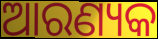
ଆରଣ୍ୟକ